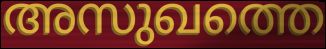
അസുഖത്തെ